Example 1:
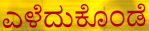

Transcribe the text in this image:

ಎಳೆದುಕೊಂಡೆ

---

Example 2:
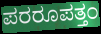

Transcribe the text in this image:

ಪರರೂಪತ್ತಂ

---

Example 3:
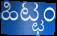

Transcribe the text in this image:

ಹಿಟ್ಟಂ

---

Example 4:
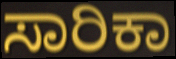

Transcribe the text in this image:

ಸಾರಿಕಾ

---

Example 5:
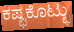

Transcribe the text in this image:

ಕಷ್ಟಕೊಟ್ಟು